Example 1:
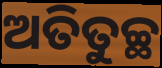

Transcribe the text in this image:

ଅତିତୁଚ୍ଛ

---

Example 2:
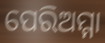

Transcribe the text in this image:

ପେରିଅମ୍ମା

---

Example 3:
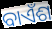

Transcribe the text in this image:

ବାଏଁଶ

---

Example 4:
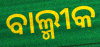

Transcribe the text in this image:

ବାଲ୍ମୀକ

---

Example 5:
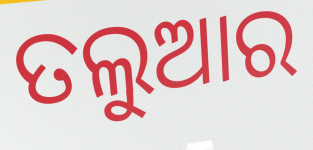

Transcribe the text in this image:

ତଲୁଆର